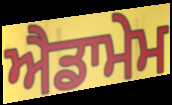
ਐਡਾਮੇਮ